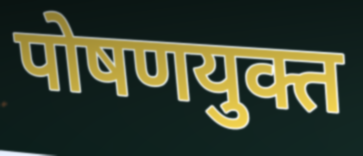
पोषणयुक्त